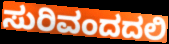
ಸುರಿವಂದದಲಿ